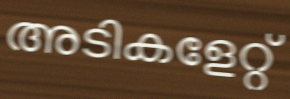
അടികളേറ്റ്